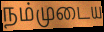
நம்முடைய